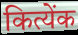
कित्येंक